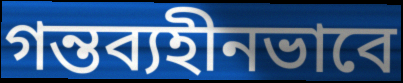
গন্তব্যহীনভাবে